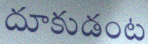
దూకుడంట